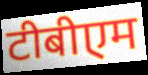
टीबीएम